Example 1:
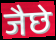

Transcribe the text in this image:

जैछे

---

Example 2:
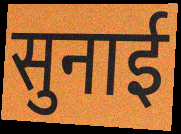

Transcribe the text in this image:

सुनाई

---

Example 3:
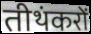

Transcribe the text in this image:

तीथंकरों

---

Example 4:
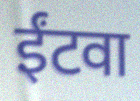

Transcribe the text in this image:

ईंटवा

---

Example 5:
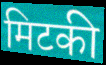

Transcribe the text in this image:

मिटकी